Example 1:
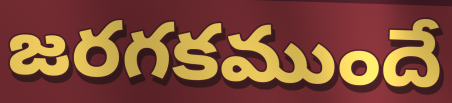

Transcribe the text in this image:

జరగకముందే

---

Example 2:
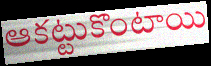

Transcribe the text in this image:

ఆకట్టుకొంటాయి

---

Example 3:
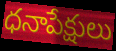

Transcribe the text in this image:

ధనాపేక్షులు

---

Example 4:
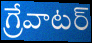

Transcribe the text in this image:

గ్రేవాటర్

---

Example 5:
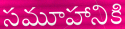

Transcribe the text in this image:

సమూహానికి